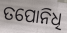
ତପୋନିଧି